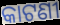
କାଟଣୀ